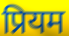
प्रियम